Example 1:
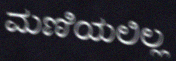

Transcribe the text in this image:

ಮಣಿಯಲಿಲ್ಲ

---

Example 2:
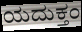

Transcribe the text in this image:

ಯದುಕ್ತಂ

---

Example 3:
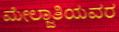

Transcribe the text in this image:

ಮೇಲ್ಜಾತಿಯವರ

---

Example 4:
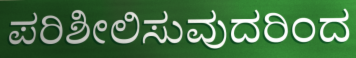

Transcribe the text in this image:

ಪರಿಶೀಲಿಸುವುದರಿಂದ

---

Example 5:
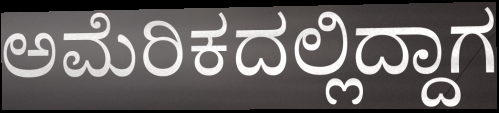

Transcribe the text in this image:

ಅಮೆರಿಕದಲ್ಲಿದ್ದಾಗ